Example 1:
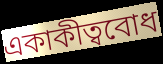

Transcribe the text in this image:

একাকীত্ববোধ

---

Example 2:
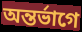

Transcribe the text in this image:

অন্তর্ভাগে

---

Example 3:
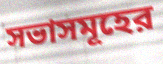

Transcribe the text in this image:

সভাসমূহের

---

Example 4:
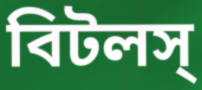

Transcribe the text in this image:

বিটলস্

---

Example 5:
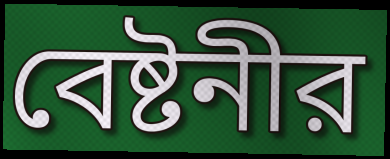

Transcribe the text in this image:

বেষ্টনীর